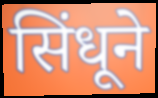
सिंधूने